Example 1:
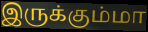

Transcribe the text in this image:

இருக்கும்மா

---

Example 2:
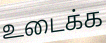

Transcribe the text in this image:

உடைக்க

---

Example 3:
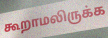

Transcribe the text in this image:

கூறாமலிருக்க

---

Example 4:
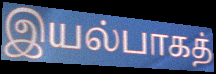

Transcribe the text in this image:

இயல்பாகத்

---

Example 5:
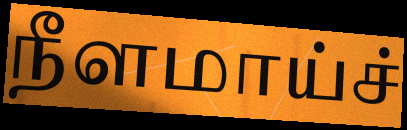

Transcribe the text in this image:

நீளமாய்ச்